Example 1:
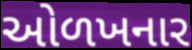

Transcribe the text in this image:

ઓળખનાર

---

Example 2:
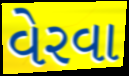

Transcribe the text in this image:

વેરવા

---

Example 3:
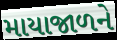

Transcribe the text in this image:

માયાજાળને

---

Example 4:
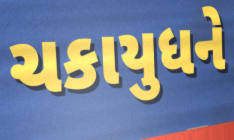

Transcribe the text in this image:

ચકાયુધને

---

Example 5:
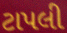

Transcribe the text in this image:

ટાપલી